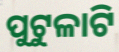
ପୁଟୁଳାଟି